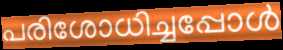
പരിശോധിച്ചപ്പോൾ